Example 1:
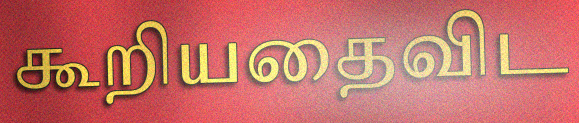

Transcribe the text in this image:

கூறியதைவிட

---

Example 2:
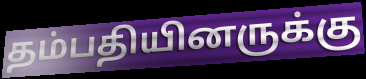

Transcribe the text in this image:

தம்பதியினருக்கு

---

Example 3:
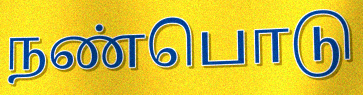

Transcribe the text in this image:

நண்பொடு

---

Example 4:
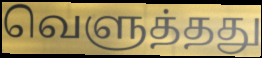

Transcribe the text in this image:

வெளுத்தது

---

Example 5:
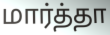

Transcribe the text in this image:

மார்த்தா